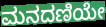
ಮನದಣಿಯೇ